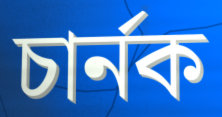
চার্নক